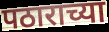
पठाराच्या